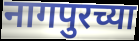
नागपुरच्या